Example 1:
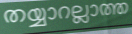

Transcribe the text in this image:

തയ്യാറല്ലാത്ത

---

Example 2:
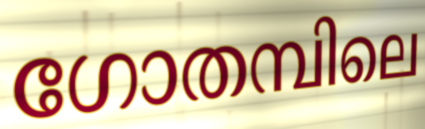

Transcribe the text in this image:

ഗോതമ്പിലെ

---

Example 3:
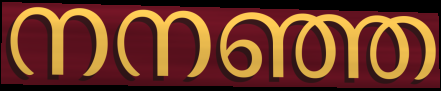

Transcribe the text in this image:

നനഞ്ഞ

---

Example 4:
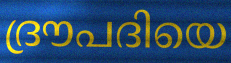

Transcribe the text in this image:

ദ്രൗപദിയെ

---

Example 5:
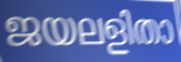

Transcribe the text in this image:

ജയലളിതാ